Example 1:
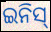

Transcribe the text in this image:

ଇନିସ୍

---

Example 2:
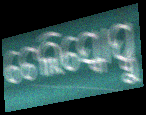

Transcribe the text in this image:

ଟେଲିସ୍କୋପ୍କୁ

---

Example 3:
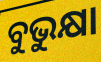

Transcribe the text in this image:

ବୁଭୁକ୍ଷା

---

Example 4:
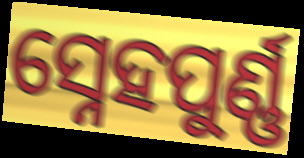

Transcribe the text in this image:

ସ୍ନେହପୁର୍ଣ୍ଣ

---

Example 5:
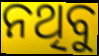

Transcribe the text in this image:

ନଥିବୁ